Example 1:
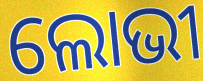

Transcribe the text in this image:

ଲୋଭୀ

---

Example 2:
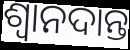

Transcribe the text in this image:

ଶ୍ଵାନଦାନ୍ତ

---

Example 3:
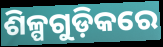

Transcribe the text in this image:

ଶିଳ୍ପଗୁଡ଼ିକରେ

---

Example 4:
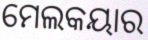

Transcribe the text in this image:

ମେଲକୟାର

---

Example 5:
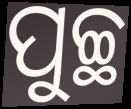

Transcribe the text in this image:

ପୁଚ୍ଛ